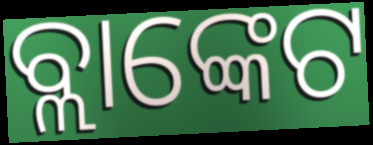
ବ୍ଲାଙ୍କେଟ